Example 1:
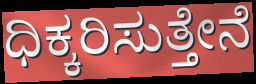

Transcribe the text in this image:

ಧಿಕ್ಕರಿಸುತ್ತೇನೆ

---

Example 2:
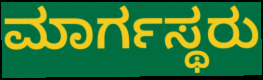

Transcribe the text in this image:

ಮಾರ್ಗಸ್ಥರು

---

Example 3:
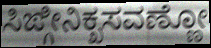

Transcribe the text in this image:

ಸಿಙ್ಗೀನಿಕ್ಖಸವಣ್ಣೋ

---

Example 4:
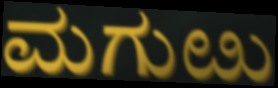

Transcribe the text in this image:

ಮಗುೞು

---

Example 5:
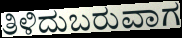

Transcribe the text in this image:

ತಿಳಿದುಬರುವಾಗ